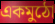
একমুঠো